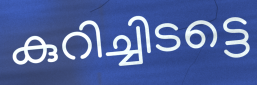
കുറിച്ചിടട്ടെ